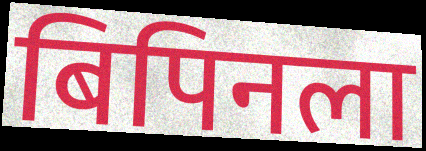
बिपिनला